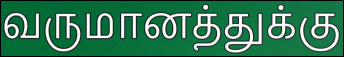
வருமானத்துக்கு